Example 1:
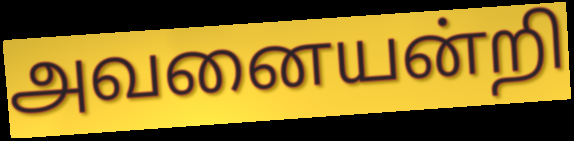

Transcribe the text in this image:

அவனையன்றி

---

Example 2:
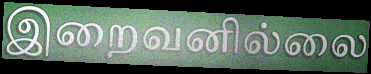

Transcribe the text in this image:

இறைவனில்லை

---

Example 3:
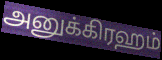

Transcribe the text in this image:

அனுக்கிரஹம்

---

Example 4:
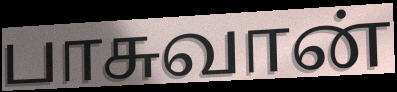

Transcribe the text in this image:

பாசுவான்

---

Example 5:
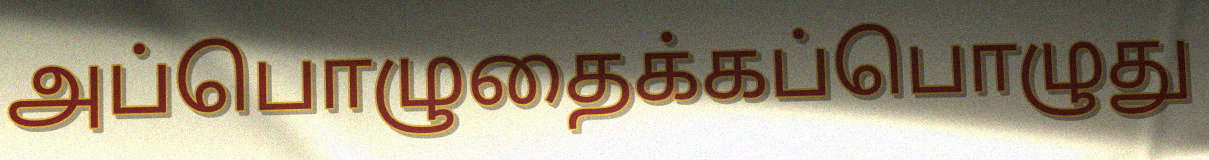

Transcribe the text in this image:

அப்பொழுதைக்கப்பொழுது